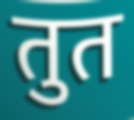
तुत